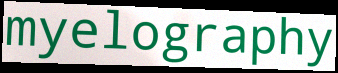
myelography